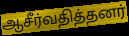
ஆசீர்வதித்தனர்